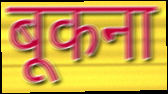
बूकना